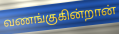
வணங்குகின்றான்